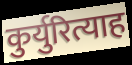
कुर्युरित्याह